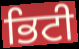
ਭਿਟੀ